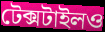
টেক্সটাইলও